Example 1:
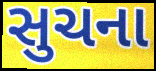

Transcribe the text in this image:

સુચના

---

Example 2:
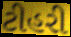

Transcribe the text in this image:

ટીહરી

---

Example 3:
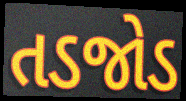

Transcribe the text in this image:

તડજોડ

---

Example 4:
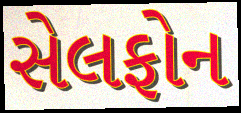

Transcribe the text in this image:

સેલફોન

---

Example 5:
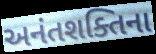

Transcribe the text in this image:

અનંતશક્તિના